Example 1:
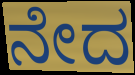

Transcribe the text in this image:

ನೇದ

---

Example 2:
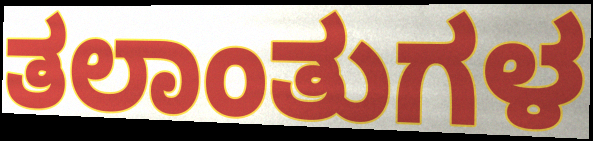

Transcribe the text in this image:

ತಲಾಂತುಗಳ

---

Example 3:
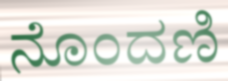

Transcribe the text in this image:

ನೊಂದಣಿ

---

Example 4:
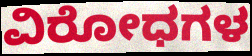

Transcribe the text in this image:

ವಿರೋಧಗಳ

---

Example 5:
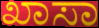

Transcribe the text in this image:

ಖಾಸಾ